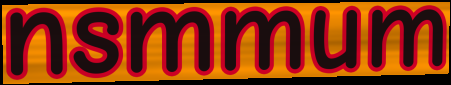
nsmmum